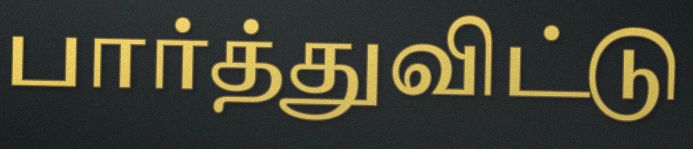
பார்த்துவிட்டு